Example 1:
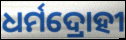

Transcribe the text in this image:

ଧର୍ମଦ୍ରୋହୀ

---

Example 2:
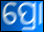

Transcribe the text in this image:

ପ୍ରୋ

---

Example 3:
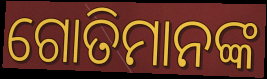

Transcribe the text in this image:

ଗୋତିମାନଙ୍କ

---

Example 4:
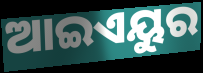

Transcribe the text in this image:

ଆଇଏୟୁର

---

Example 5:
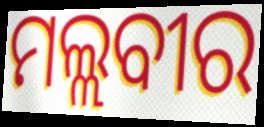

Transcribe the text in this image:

ମଲ୍ଲବୀର